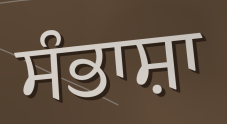
ਸੰਭਾਸ਼ਾ